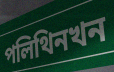
পলিথিনখন